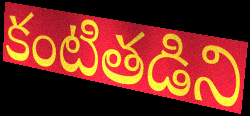
కంటితడిని